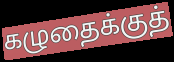
கழுதைக்குத்